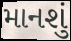
માનશું